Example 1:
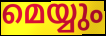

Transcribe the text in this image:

മെയ്യും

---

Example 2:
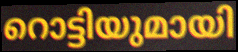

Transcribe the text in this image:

റൊട്ടിയുമായി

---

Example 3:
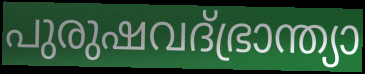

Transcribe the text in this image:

പുരുഷവദ്ഭ്രാന്ത്യാ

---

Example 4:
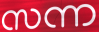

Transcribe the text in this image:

സന്ന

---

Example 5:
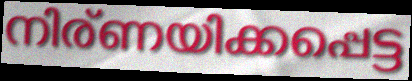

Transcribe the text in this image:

നിര്ണയിക്കപ്പെട്ട